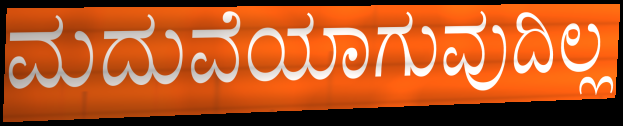
ಮದುವೆಯಾಗುವುದಿಲ್ಲ